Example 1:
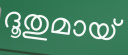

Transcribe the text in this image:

ദൂതുമായ്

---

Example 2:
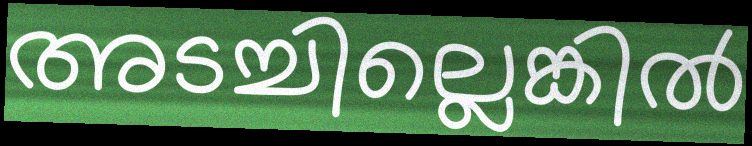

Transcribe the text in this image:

അടച്ചില്ലെങ്കിൽ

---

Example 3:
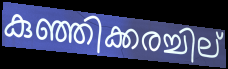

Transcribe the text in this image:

കുഞ്ഞിക്കരച്ചില്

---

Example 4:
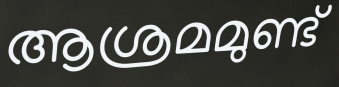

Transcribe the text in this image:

ആശ്രമമുണ്ട്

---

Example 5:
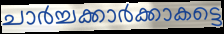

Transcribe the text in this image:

ചാർച്ചക്കാർക്കാകട്ടെ